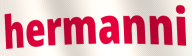
hermanni